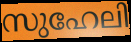
സുഹേലി